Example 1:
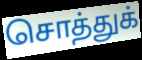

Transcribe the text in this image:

சொத்துக்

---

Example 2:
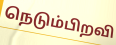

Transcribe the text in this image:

நெடும்பிறவி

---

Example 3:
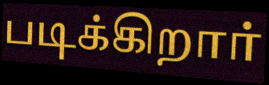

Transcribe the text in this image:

படிக்கிறார்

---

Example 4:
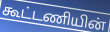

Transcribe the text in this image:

கூட்டணியின்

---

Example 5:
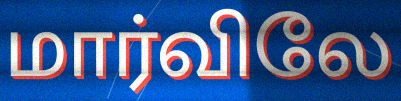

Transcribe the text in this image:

மார்விலே